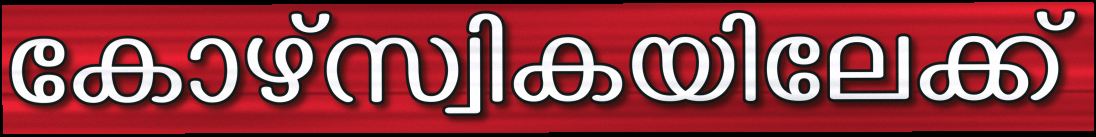
കോഴ്സ്വികയിലേക്ക്